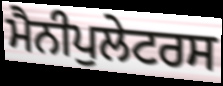
ਮੈਨੀਪੁਲੇਟਰਸ